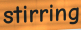
stirring